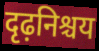
दृढ़निश्चय